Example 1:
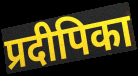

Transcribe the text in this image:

प्रदीपिका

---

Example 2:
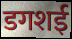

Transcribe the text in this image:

डगशई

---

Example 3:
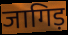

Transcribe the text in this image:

जागिड़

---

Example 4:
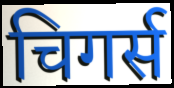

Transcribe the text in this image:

चिगर्स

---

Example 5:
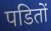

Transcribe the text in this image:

पडितों